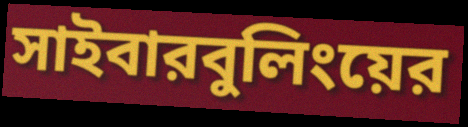
সাইবারবুলিংয়ের